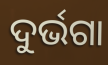
ଦୁର୍ଭଗା